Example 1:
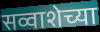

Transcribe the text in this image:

सव्वाशेच्या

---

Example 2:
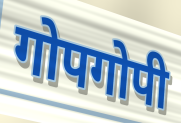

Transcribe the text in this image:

गोपगोपी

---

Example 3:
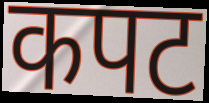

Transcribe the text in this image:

कपट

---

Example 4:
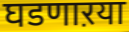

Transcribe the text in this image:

घडणाऱया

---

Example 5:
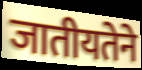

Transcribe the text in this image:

जातीयतेने